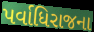
પર્વાધિરાજના